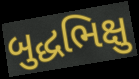
બુદ્ધભિક્ષુ